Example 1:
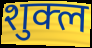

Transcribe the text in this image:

शुक्‍ल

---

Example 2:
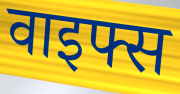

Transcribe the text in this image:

वाइफ्स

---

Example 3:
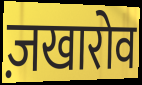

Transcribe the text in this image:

ज़खारोव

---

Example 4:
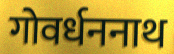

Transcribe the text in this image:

गोवर्धननाथ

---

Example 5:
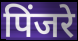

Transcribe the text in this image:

पिंजरे